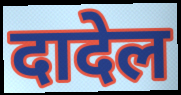
दादेल